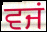
ਵਜਂ